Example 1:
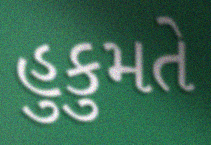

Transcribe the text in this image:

હુકુમતે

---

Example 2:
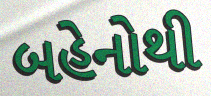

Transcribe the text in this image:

બહેનોથી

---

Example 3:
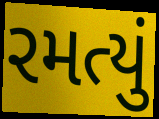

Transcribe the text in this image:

રમત્યું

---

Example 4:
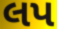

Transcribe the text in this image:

લપ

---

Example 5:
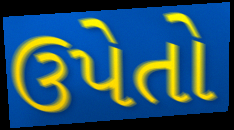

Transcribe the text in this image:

ઉપેતો